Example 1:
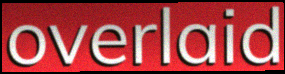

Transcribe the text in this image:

overlaid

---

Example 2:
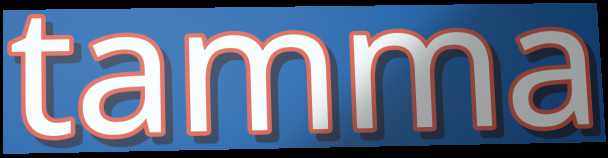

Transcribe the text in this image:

tamma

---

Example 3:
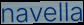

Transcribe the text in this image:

navella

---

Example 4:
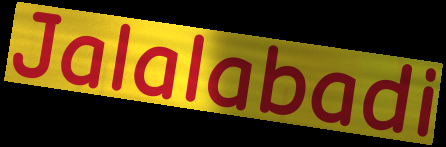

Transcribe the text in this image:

Jalalabadi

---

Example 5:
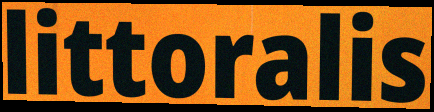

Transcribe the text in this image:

littoralis